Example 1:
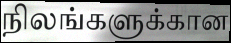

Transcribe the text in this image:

நிலங்களுக்கான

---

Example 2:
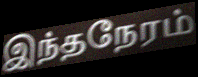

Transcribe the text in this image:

இந்தநேரம்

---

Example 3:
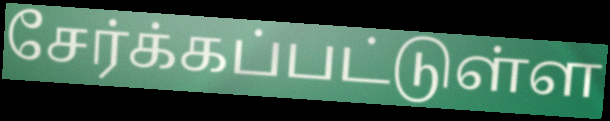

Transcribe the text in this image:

சேர்க்கப்பட்டுள்ள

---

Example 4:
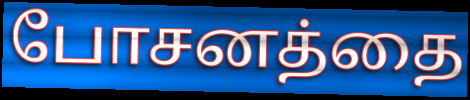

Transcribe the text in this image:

போசனத்தை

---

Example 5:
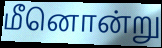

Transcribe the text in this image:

மீனொன்று